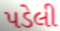
પડેલી